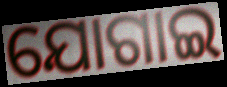
ଯୋଗାଇ